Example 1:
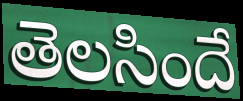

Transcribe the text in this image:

తెలసిందే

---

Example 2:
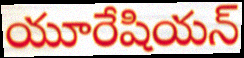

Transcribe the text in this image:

యూరేషియన్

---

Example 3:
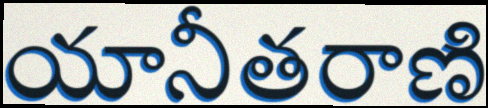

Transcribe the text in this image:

యానీతరాణి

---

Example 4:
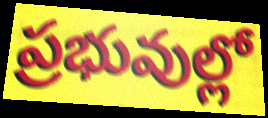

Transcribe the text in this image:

ప్రభువుల్లో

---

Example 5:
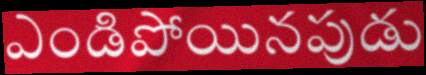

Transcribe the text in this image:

ఎండిపోయినపుడు